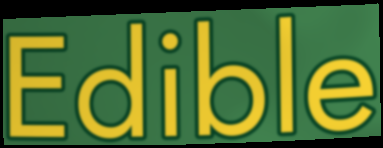
Edible